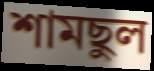
শামছুল